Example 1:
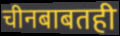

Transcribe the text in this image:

चीनबाबतही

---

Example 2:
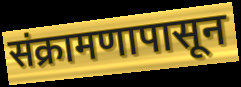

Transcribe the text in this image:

संक्रामणापासून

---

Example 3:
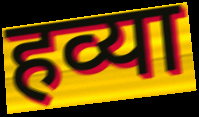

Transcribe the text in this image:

हव्या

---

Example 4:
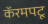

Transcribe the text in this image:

कॅरमपटू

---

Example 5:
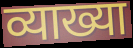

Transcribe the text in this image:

व्याख्या